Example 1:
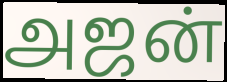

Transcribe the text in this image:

அஜன்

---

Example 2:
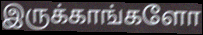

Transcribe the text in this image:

இருக்காங்களோ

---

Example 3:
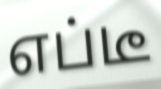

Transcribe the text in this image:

எப்டீ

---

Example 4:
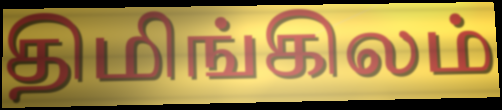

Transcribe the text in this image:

திமிங்கிலம்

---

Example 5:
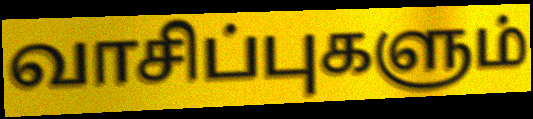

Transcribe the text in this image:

வாசிப்புகளும்